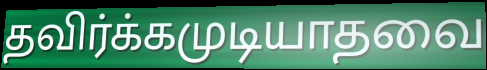
தவிர்க்கமுடியாதவை